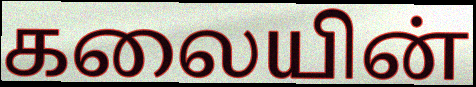
கலையின்